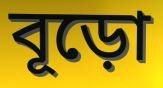
বূড়ো